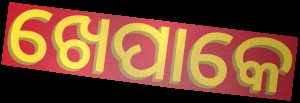
ଖେପାକେ